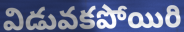
విడువకపోయిరి